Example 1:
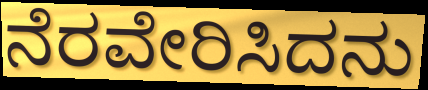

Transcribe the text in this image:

ನೆರವೇರಿಸಿದನು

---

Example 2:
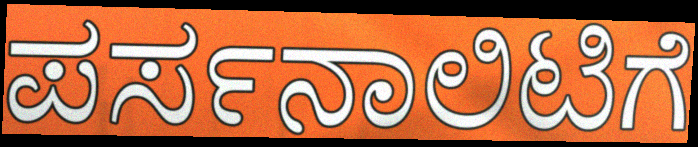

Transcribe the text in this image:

ಪರ್ಸನಾಲಿಟಿಗೆ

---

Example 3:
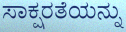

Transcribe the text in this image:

ಸಾಕ್ಷರತೆಯನ್ನು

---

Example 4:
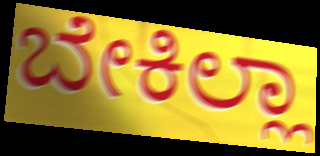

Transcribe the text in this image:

ಬೇಕಿಲ್ಲಾ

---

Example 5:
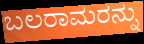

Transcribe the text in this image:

ಬಲರಾಮರನ್ನು